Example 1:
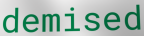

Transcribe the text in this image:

demised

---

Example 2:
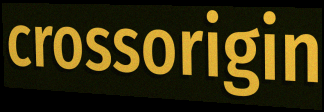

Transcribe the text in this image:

crossorigin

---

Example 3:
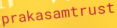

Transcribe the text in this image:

prakasamtrust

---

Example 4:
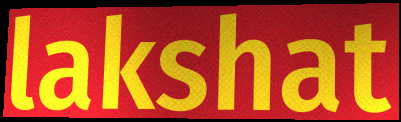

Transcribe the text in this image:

lakshat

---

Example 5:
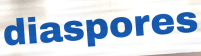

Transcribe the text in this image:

diaspores